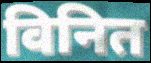
विनित